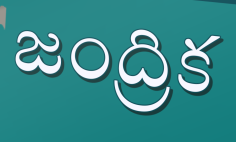
జంద్రిక